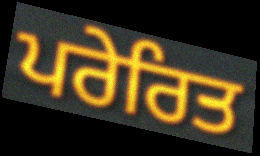
ਪਰੇਰਿਤ